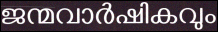
ജന്മവാർഷികവും